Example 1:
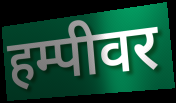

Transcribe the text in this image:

हम्पीवर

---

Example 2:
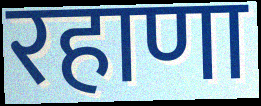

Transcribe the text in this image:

रहाणा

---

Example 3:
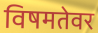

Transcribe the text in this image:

विषमतेवर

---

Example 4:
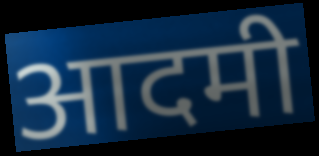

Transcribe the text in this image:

आदमी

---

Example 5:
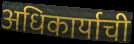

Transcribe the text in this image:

अधिकार्याची